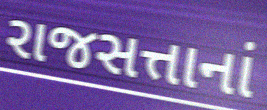
રાજસત્તાનાં